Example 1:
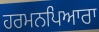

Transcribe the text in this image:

ਹਰਮਨਪਿਆਰਾ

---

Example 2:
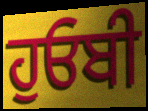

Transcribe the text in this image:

ਹੁਓਬੀ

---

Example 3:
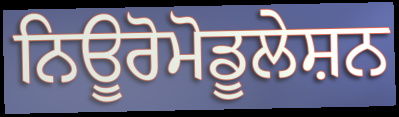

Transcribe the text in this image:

ਨਿਊਰੋਮੋਡੂਲੇਸ਼ਨ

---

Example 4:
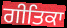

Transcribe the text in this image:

ਗੀਤਿਕਾ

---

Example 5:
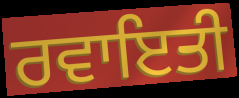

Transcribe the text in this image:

ਰਵਾਇਤੀ